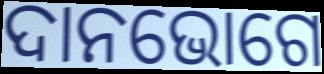
ଦାନଭୋଗେ